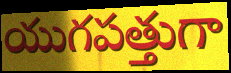
యుగపత్తుగా